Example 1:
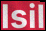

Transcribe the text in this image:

Isil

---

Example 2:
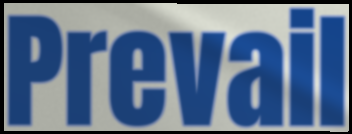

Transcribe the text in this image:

Prevail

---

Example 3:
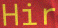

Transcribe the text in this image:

Hir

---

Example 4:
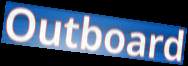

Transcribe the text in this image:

Outboard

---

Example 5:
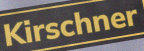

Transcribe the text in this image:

Kirschner